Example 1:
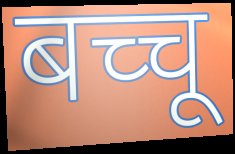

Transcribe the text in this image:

बच्चू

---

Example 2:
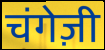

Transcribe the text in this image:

चंगेज़ी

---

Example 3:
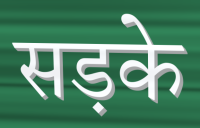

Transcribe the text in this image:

सड़के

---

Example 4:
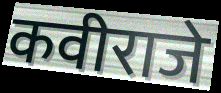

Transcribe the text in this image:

कवीराजे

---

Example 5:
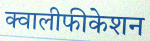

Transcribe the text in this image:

क्वालीफीकेशन